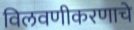
विलवणीकरणाचे